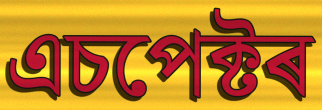
এচপেক্টৰ